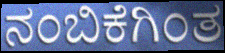
ನಂಬಿಕೆಗಿಂತ